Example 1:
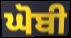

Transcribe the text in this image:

ਘੋਬੀ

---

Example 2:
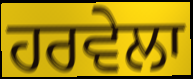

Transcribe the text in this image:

ਹਰਵੇਲਾ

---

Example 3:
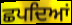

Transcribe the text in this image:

ਛਪਦਿਆਂ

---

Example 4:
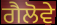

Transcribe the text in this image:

ਗੈਲੋਵੇ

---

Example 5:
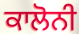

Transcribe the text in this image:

ਕਾਲੋਨੀ